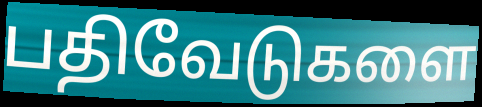
பதிவேடுகளை